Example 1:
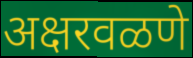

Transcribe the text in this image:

अक्षरवळणे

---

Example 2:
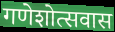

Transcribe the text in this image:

गणेशोत्सवास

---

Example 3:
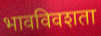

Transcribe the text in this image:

भावविवशता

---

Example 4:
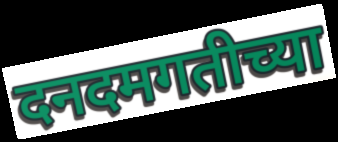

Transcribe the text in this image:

दनदमगतीच्या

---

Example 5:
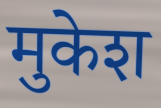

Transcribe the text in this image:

मुकेश